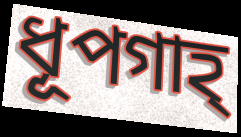
ধূপগাহ্